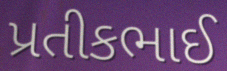
પ્રતીકભાઈ